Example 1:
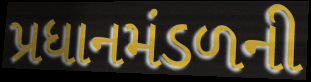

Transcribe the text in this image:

પ્રધાનમંડળની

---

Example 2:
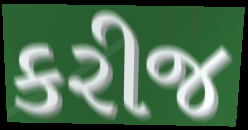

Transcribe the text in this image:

કરીજ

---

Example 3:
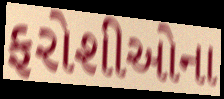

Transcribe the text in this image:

ફરોશીઓના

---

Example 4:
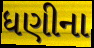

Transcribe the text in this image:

ધણીના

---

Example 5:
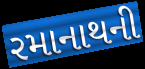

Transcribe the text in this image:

રમાનાથની